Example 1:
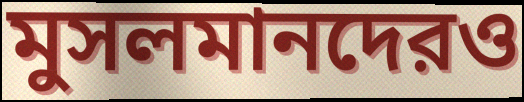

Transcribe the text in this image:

মুসলমানদেরও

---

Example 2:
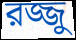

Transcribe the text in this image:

রজ্জু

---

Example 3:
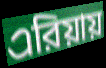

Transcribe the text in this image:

এরিয়ায়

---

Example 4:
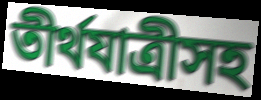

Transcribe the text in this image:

তীর্থযাত্রীসহ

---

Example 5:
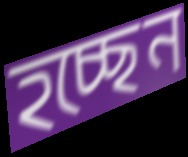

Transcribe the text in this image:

হচ্ছেন